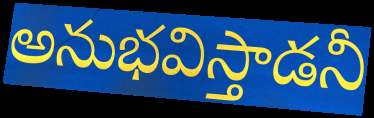
అనుభవిస్తాడనీ